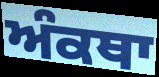
ਅੰਕਥਾ